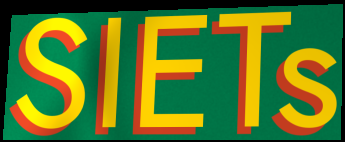
SIETs